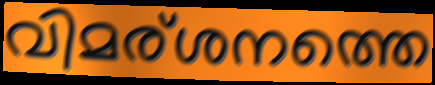
വിമര്ശനത്തെ